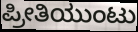
ಪ್ರೀತಿಯುಂಟು